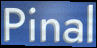
Pinal